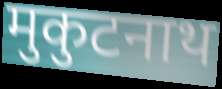
मुकुटनाथ